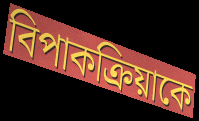
বিপাকক্রিয়াকে